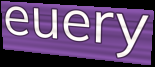
euery